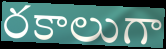
రకాలుగా